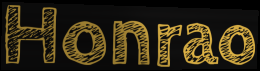
Honrao